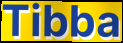
Tibba